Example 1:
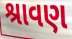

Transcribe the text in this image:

શ્રાવણ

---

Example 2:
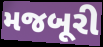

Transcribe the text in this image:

મજબૂરી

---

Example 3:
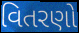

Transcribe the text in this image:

વિતરણો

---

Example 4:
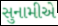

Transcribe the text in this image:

સુનામીએ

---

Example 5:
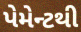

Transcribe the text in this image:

પેમેન્ટથી